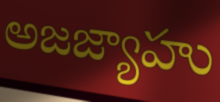
అజజ్యాహు